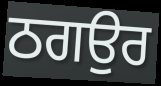
ਠਗਉਰ